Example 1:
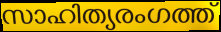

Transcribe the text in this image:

സാഹിത്യരംഗത്ത്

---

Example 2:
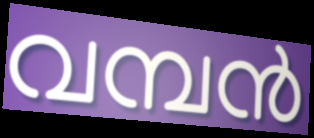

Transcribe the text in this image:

വമ്പൻ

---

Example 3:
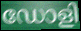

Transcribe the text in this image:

ഡോളി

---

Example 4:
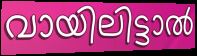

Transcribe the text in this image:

വായിലിട്ടാൽ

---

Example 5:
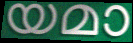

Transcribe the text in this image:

യമാ